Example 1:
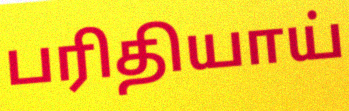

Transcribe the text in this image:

பரிதியாய்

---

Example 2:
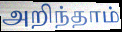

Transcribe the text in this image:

அறிந்தாம்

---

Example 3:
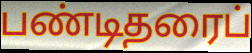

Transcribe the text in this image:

பண்டிதரைப்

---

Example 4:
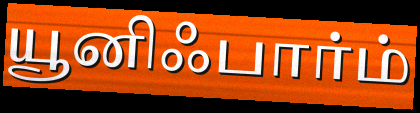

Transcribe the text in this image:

யூனிஃபார்ம்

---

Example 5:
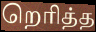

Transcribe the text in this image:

றெரித்த